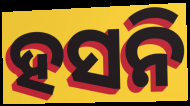
ହସନି